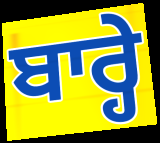
ਬਾਰ੍ਹੇ